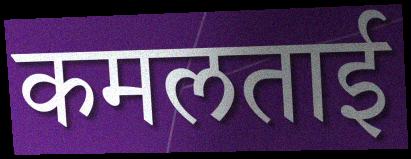
कमलताई